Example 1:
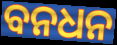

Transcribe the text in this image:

ବନଧନ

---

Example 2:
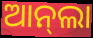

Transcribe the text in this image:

ଆନ୍‌ଲା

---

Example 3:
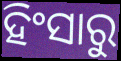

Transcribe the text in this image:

ହିଂସାରୁ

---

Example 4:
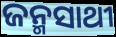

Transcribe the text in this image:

ଜନ୍ମସାଥୀ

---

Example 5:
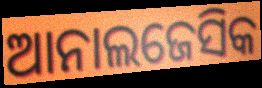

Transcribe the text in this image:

ଆନାଲଜେସିକ